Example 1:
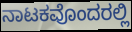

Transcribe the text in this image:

ನಾಟಕವೊಂದರಲ್ಲಿ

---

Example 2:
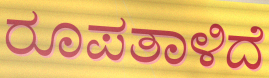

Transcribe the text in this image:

ರೂಪತಾಳಿದೆ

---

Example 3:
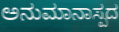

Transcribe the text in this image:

ಅನುಮಾನಾಸ್ಪದ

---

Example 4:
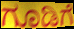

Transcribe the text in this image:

ಗೂಡಿಗೆ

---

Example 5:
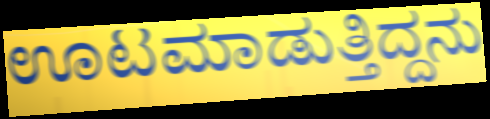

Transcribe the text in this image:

ಊಟಮಾಡುತ್ತಿದ್ದನು